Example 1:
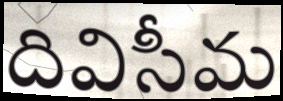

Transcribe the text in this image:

దివిసీమ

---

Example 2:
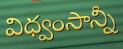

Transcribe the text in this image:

విధ్వంసాన్నీ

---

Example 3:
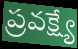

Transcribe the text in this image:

ప్రవక్ష్యే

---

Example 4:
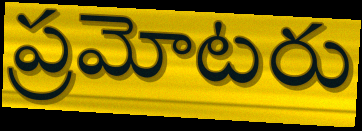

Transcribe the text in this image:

ప్రమోటరు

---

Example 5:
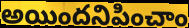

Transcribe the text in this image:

అయిందనిపించాం